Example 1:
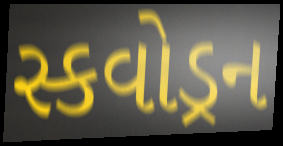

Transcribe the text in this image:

સ્કવોડ્રન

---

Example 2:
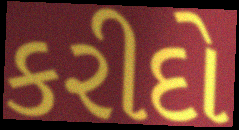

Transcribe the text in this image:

કરીદો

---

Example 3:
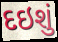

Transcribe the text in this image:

દઇશું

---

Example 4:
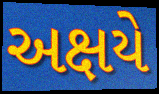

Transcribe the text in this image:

અક્ષયે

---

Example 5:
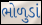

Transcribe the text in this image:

ભોળુડાં